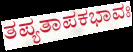
ತಪ್ಯತಾಪಕಭಾವಃ